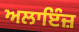
ਅਲਾਇੰਜ਼